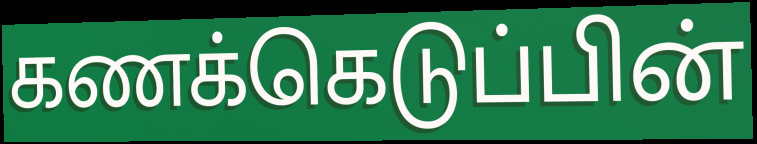
கணக்கெடுப்பின்